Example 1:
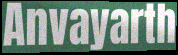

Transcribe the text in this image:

Anvayarth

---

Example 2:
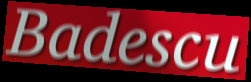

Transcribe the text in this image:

Badescu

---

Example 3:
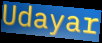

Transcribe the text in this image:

Udayar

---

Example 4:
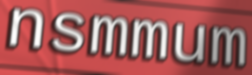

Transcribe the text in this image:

nsmmum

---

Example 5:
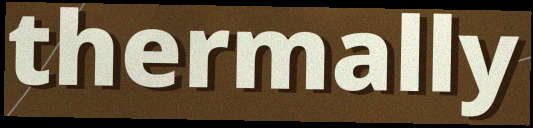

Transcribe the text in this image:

thermally